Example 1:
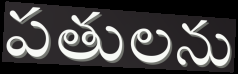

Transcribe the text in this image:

పతులను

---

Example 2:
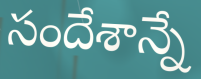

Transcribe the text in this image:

సందేశాన్నే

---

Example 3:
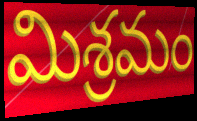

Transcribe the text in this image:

మిశ్రమం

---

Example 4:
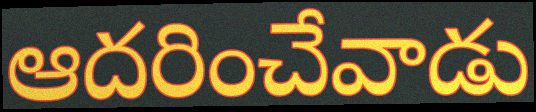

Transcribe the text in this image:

ఆదరించేవాడు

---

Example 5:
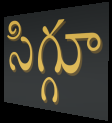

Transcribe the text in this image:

సిగ్గూ